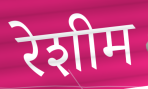
रेशीम